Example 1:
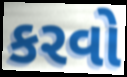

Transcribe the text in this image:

કરવો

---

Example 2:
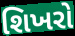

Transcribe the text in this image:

શિખરો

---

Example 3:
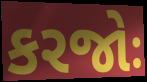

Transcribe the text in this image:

કરજોઃ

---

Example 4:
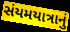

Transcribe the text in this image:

સંયમયાત્રાનું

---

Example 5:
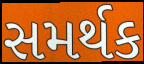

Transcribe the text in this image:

સમર્થક